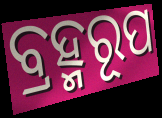
ବ୍ରହ୍ମରୂପ